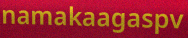
namakaagaspv